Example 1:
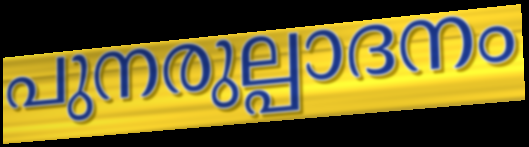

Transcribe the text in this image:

പുനരുല്പാദനം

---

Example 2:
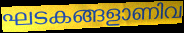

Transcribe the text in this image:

ഘടകങ്ങളാണിവ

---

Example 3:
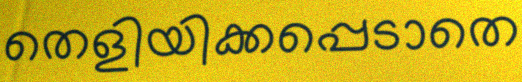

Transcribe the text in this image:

തെളിയിക്കപ്പെടാതെ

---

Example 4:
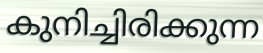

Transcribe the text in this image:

കുനിച്ചിരിക്കുന്ന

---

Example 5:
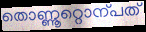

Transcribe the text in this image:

തൊണ്ണൂറ്റൊന്പത്